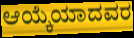
ಆಯ್ಕೆಯಾದವರ